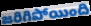
జరిగిపోయింది